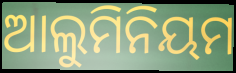
ଆଲୁମିନିୟମ